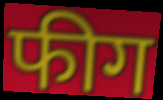
फीग